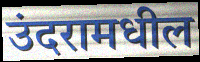
उंदरामधील